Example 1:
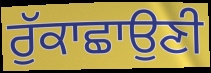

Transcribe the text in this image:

ਰੁੱਕਾਛਾਉਣੀ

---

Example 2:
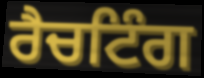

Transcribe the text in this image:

ਰੈਚਟਿੰਗ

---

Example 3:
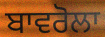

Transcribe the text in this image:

ਬਾਵਰੋਲਾ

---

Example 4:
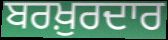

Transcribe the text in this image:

ਬਰਖ਼ੁਰਦਾਰ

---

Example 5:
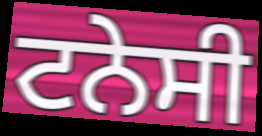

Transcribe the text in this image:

ਟਨੇਸੀ